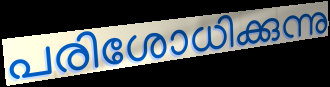
പരിശോധിക്കുന്നു